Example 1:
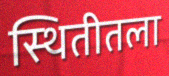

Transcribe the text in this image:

स्थितीतला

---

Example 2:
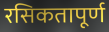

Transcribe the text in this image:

रसिकतापूर्ण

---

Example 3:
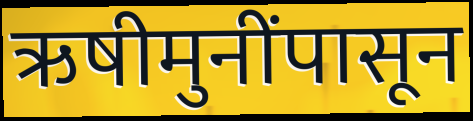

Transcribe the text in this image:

ऋषीमुनींपासून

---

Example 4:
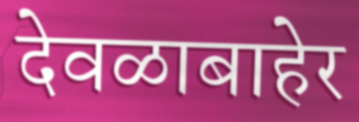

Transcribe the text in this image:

देवळाबाहेर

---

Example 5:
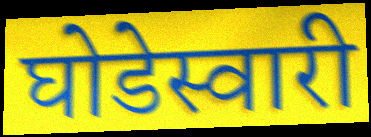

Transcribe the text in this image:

घोडेस्वारी